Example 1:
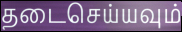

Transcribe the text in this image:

தடைசெய்யவும்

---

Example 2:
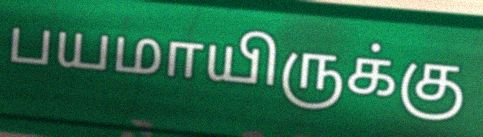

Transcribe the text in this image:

பயமாயிருக்கு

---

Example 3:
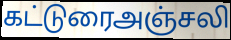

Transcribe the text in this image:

கட்டுரைஅஞ்சலி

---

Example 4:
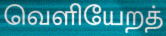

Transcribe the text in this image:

வெளியேறத்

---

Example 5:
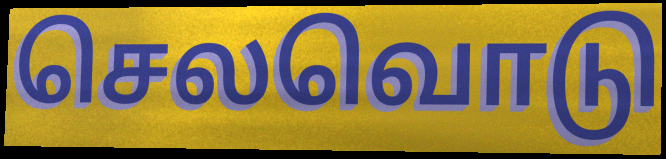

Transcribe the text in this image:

செலவொடு